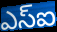
ఎస్ఐ